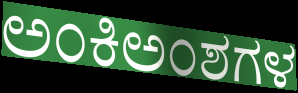
ಅಂಕಿಅಂಶಗಳ